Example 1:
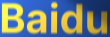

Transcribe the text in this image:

Baidu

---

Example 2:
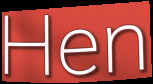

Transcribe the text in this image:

Hen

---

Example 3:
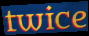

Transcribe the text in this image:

twice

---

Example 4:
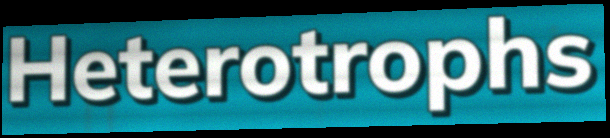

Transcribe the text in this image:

Heterotrophs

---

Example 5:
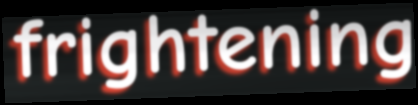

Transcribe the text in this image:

frightening